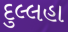
દુલ્લહા